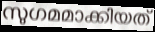
സുഗമമാക്കിയത്